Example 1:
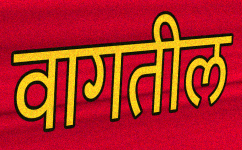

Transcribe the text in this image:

वागतील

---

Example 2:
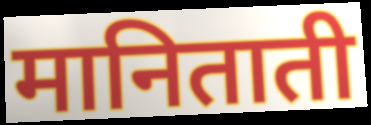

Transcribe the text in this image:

मानिताती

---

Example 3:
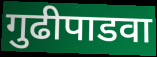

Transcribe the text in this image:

गुढीपाडवा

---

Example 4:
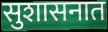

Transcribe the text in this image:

सुशासनात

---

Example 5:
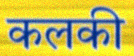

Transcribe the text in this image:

कलकी